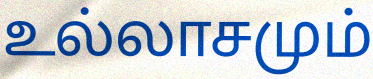
உல்லாசமும்